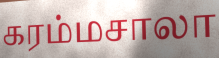
கரம்மசாலா